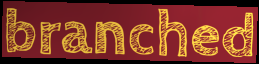
branched